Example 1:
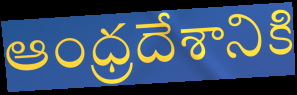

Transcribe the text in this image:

ఆంధ్రదేశానికి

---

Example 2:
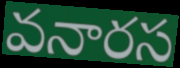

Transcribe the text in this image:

వనారస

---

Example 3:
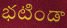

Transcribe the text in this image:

భటిండా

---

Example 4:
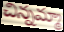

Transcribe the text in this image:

చిన్నమ్మా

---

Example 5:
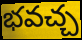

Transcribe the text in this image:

భవచ్చ